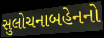
સુલોચનાબહેનનો